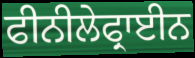
ਫੀਨੀਲੇਫ੍ਰਾਈਨ